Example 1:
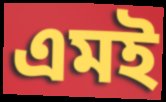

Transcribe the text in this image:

এমই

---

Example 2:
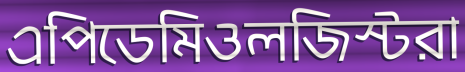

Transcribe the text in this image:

এপিডেমিওলজিস্টরা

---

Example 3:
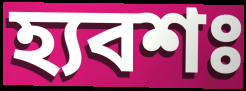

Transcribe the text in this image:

হ্যবশঃ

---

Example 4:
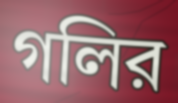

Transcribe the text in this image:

গলির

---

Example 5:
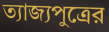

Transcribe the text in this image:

ত্যাজ্যপুত্রের